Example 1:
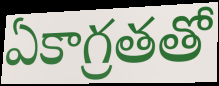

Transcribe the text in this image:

ఏకాగ్రతతో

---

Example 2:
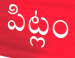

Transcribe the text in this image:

పిట్లం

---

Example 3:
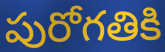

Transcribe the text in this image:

పురోగతికి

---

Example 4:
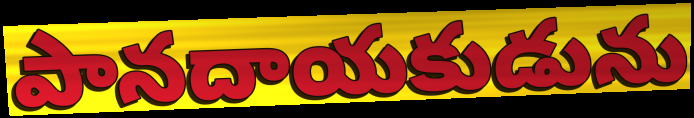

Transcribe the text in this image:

పానదాయకుడును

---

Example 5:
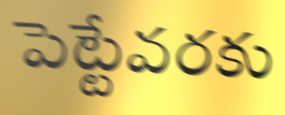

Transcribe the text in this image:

పెట్టేవరకు